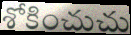
శోకించుచు